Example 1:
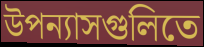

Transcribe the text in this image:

উপন্যাসগুলিতে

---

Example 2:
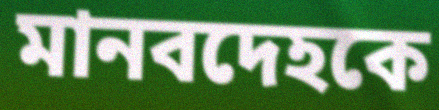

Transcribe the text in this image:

মানবদেহকে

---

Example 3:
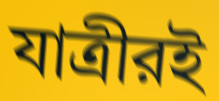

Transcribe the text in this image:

যাত্রীরই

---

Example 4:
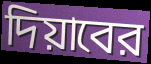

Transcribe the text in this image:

দিয়াবের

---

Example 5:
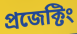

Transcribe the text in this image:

প্রজেক্টিং